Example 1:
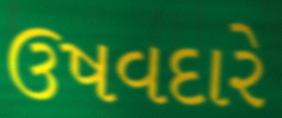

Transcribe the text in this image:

ઉષવદારે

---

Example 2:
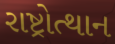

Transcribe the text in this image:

રાષ્ટ્રોત્થાન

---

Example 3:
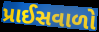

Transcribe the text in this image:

પ્રાઈસવાળો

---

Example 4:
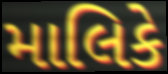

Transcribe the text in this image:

માલિકે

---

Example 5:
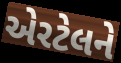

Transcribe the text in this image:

એરટેલને